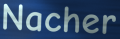
Nacher